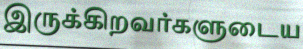
இருக்கிறவர்களுடைய